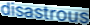
disastrous